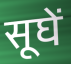
सूघें